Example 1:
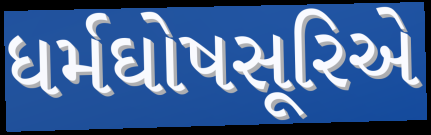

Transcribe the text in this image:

ધર્મઘોષસૂરિએ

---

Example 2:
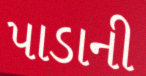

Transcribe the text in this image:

પાડાની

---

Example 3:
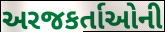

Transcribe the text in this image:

અરજકર્તાઓની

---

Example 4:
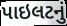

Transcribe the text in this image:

પાઇલટનું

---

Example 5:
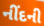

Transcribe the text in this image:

નીંદની